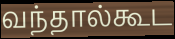
வந்தால்கூட